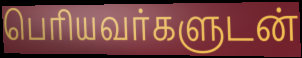
பெரியவர்களுடன்